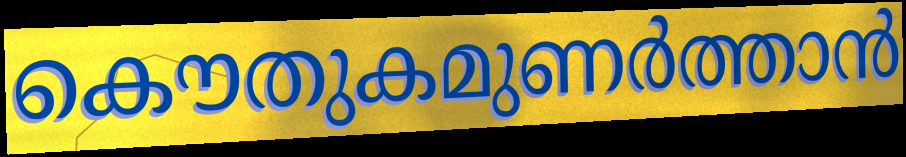
കൌതുകമുണർത്താൻ